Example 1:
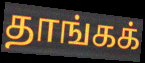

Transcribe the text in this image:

தாங்கக்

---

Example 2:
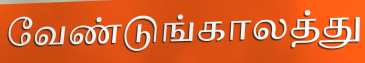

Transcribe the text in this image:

வேண்டுங்காலத்து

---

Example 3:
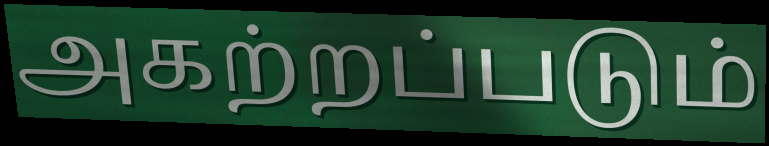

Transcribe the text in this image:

அகற்றப்படும்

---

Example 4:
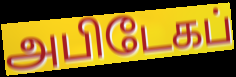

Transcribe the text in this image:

அபிடேகப்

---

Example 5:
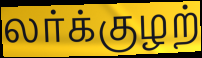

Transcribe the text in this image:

லர்க்குழற்